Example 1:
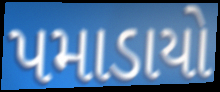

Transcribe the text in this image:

પમાડાયો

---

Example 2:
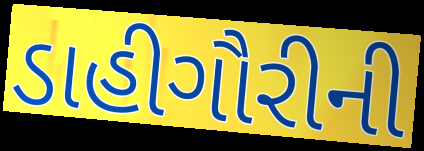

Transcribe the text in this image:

ડાહીગૌરીની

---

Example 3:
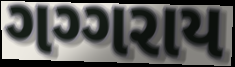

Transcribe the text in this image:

ગગ્ગરાય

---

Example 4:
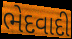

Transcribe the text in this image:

ભેદવાદી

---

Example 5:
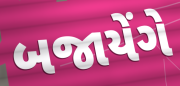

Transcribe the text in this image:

બજાયેંગે